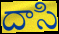
దాసి